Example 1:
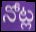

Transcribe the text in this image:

నోట్ల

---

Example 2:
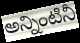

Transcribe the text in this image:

అన్నింటినీ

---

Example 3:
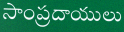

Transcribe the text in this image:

సాంప్రదాయులు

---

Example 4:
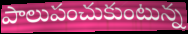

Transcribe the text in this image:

పాలుపంచుకుంటున్న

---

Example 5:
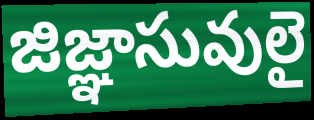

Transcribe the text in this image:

జిజ్ఞాసువులై